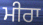
ਮੀਰਾ